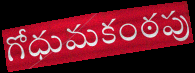
గోధుమకంఠపు